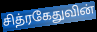
சித்ரகேதுவின்